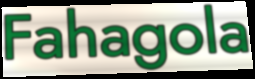
Fahagola